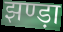
झण्ड़ा